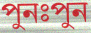
পুনঃপুন